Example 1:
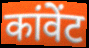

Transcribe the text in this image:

कांवेंट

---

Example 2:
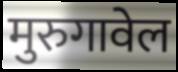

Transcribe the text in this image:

मुरुगावेल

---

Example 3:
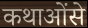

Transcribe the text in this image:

कथाओंसे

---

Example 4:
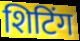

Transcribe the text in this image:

शिटिंग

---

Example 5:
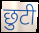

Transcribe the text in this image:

छुटी